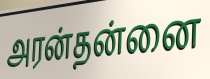
அரன்தன்னை